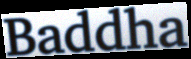
Baddha